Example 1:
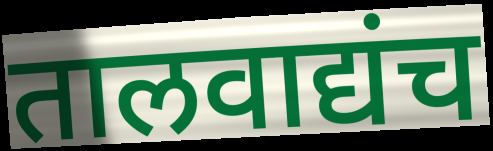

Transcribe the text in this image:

तालवाद्यंच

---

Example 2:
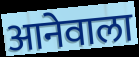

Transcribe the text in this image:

आनेवाला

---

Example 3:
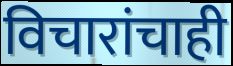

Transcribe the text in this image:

विचारांचाही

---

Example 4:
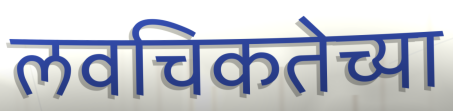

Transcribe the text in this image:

लवचिकतेच्या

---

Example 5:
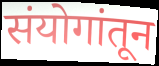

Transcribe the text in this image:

संयोगांतून